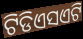
ଟିଡିଏସଏଟି